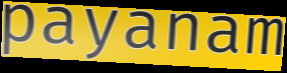
payanam